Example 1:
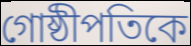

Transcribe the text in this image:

গোষ্ঠীপতিকে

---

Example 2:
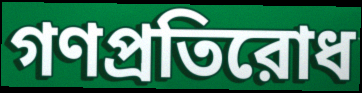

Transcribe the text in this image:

গণপ্রতিরোধ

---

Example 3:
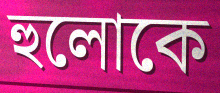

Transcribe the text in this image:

হুলোকে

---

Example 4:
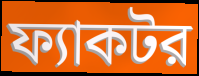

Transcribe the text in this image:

ফ্যাকটর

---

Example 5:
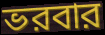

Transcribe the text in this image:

ভরবার